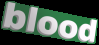
blood